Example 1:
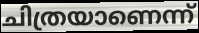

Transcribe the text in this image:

ചിത്രയാണെന്ന്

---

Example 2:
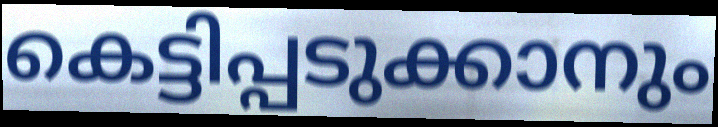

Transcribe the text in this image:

കെട്ടിപ്പടുക്കാനും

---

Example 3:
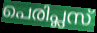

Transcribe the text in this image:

പെരിപ്ലസ്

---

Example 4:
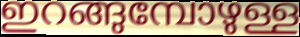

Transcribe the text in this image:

ഇറങ്ങുമ്പോഴുള്ള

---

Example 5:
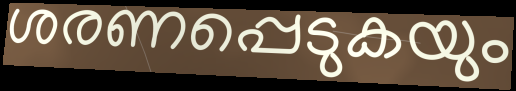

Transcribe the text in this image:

ശരണപ്പെടുകയും